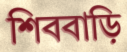
শিববাড়ি